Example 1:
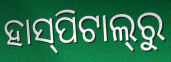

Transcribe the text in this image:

ହାସ୍‍ପିଟାଲ୍‍ରୁ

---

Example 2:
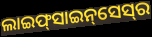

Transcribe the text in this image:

ଲାଇଫ୍‌ସାଇନ୍‌ସେସ୍‌ର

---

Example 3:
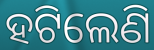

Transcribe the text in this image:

ହଟିଲେଣି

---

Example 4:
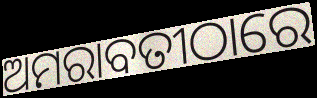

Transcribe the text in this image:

ଅମରାବତୀଠାରେ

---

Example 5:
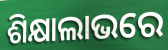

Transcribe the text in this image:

ଶିକ୍ଷାଲାଭରେ